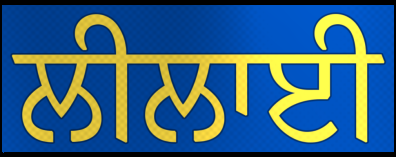
ਲੀਲਾਈ